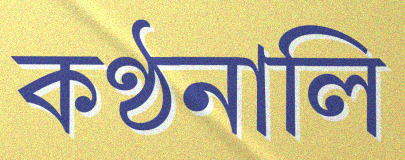
কণ্ঠনালি